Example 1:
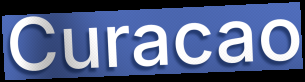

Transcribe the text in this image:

Curacao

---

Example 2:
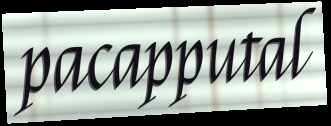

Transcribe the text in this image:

pacapputal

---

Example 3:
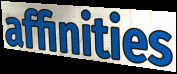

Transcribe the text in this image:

affinities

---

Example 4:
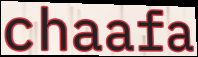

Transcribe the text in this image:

chaafa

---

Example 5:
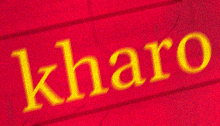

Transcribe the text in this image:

kharo